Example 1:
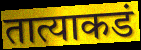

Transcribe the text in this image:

तात्याकडं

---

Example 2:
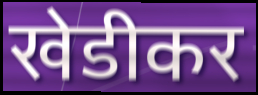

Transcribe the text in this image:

खेडीकर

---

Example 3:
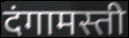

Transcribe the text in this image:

दंगामस्ती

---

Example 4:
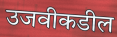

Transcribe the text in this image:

उजवीकडील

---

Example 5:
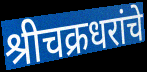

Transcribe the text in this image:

श्रीचक्रधरांचे